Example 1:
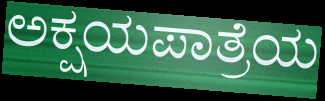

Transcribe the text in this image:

ಅಕ್ಷಯಪಾತ್ರೆಯ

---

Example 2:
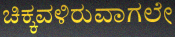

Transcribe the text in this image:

ಚಿಕ್ಕವಳಿರುವಾಗಲೇ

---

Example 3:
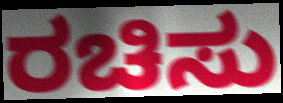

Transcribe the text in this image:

ರಚಿಸು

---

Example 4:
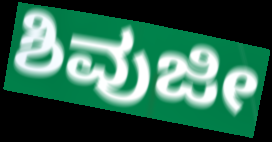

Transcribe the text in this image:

ಶಿವುಜೀ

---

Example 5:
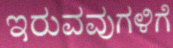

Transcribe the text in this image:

ಇರುವವುಗಳಿಗೆ